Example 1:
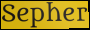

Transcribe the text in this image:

Sepher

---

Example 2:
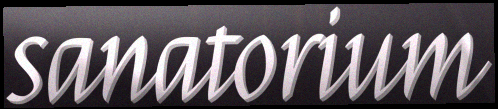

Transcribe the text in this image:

sanatorium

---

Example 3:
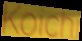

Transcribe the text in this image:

Koichi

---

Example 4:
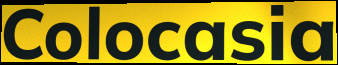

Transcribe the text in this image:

Colocasia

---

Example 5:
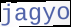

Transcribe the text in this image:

jagyo